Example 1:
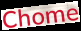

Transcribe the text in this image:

Chome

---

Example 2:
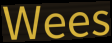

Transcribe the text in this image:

Wees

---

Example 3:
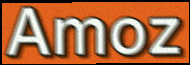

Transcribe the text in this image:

Amoz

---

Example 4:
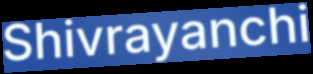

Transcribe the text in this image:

Shivrayanchi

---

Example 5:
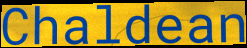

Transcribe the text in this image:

Chaldean